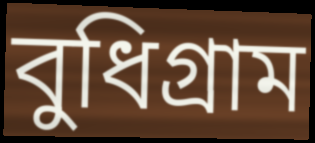
বুধিগ্রাম